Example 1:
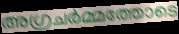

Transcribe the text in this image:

അഗ്രചർമ്മത്തോടെ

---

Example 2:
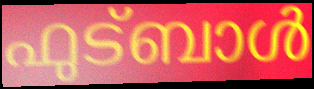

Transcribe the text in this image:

ഫുട്ബാൾ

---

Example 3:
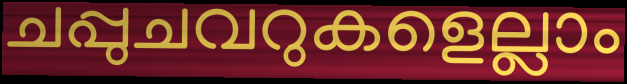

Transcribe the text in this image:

ചപ്പുചവറുകളെല്ലാം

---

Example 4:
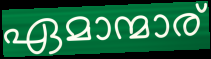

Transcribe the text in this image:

ഏമാന്മാര്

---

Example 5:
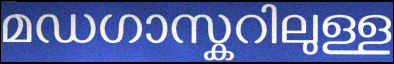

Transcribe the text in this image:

മഡഗാസ്കറിലുള്ള